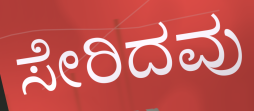
ಸೇರಿದವು